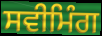
ਸਵੀਮਿੰਗ